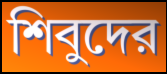
শিবুদের